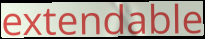
extendable